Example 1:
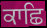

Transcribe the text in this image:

ਕਾਛਿ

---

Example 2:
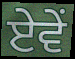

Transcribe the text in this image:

ਏਵੇਂ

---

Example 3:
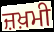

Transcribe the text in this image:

ਜ਼ਖ਼ਮੀ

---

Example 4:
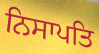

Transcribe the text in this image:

ਨਿਸਾਪਤਿ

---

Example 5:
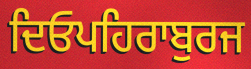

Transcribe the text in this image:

ਦਿਓਪਹਿਰਾਬੁਰਜ